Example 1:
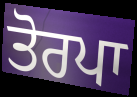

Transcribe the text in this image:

ਤੋਰਪਾ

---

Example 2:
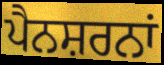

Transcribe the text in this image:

ਪੈਨਸ਼ਰਨਾਂ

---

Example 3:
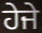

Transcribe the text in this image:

ਹੇਜੇ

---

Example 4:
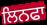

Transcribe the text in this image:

ਲਿਨਫਾ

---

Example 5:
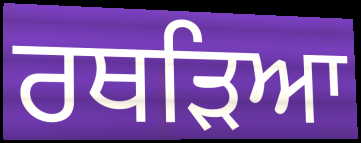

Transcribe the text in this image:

ਰਥੜਿਆ